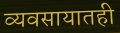
व्यवसायातही